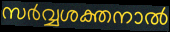
സർവ്വശക്തനാൽ